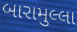
બારામુલ્લા